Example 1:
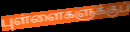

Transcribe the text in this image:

புள்ளைகளுக்குப்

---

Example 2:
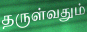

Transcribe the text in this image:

தருள்வதும்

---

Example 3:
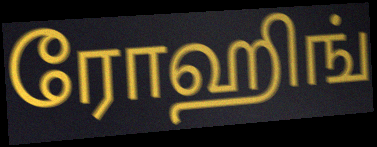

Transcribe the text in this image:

ரோஹிங்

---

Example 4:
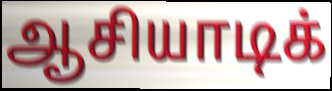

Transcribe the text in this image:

ஆசியாடிக்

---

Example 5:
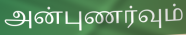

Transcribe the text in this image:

அன்புணர்வும்